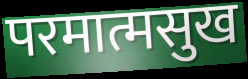
परमात्मसुख